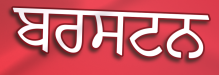
ਬਰਸਟਨ